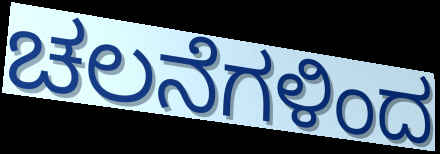
ಚಲನೆಗಳಿಂದ